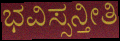
ಭವಿಸ್ಸನ್ತೀತಿ